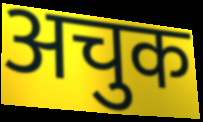
अचुक